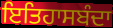
ਇਤਿਹਾਸਬੰਦਾ